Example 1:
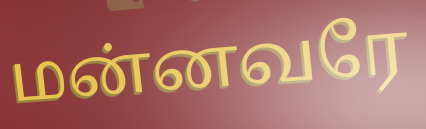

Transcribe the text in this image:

மன்னவரே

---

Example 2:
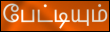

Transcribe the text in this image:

பேட்டியும்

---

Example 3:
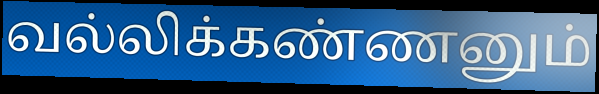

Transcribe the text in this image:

வல்லிக்கண்ணனும்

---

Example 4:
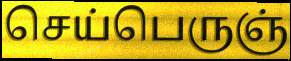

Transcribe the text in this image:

செய்பெருஞ்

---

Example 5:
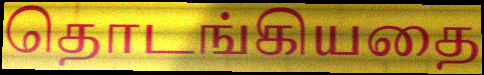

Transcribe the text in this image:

தொடங்கியதை